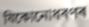
যিকোনোধৰণৰ